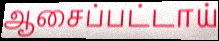
ஆசைப்பட்டாய்